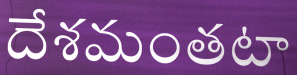
దేశమంతటా